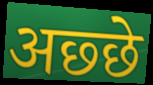
अछ्छे